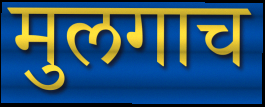
मुलगाच